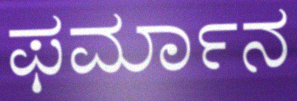
ಫರ್ಮಾನ